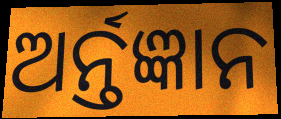
ଅର୍ନ୍ତଜ୍ଞାନ